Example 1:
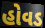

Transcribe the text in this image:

હોવડ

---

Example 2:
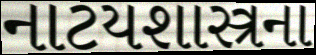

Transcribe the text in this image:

નાટયશાસ્ત્રના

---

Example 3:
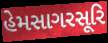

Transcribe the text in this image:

હેમસાગરસૂરિ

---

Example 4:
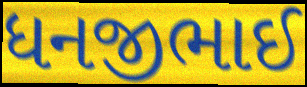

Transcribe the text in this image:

ધનજીભાઈ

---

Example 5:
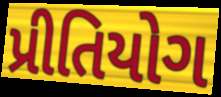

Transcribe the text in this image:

પ્રીતિયોગ